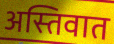
अस्तिवात